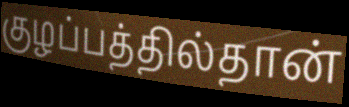
குழப்பத்தில்தான்